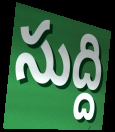
సుద్ది